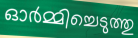
ഓർമ്മിച്ചെടുത്തു